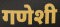
गणेशी